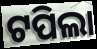
ଟପିଲା